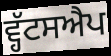
ਵ੍ਹੱਟਸਐਪ